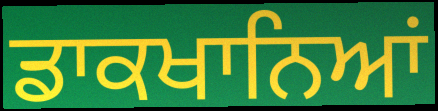
ਡਾਕਖਾਨਿਆਂ